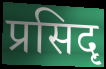
प्रसिदृ